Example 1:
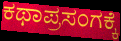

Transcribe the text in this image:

ಕಥಾಪ್ರಸಂಗಕ್ಕೆ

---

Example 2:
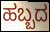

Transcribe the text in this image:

ಹಬ್ಬದ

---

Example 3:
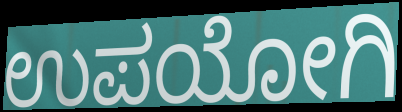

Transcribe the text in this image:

ಉಪಯೋಗಿ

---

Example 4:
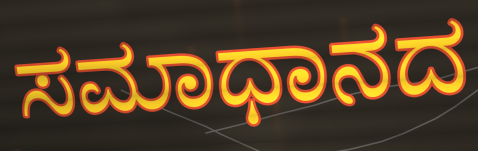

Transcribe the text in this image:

ಸಮಾಧಾನದ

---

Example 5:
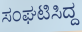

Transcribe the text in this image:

ಸಂಘಟಿಸಿದ್ದ